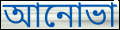
আনোভা